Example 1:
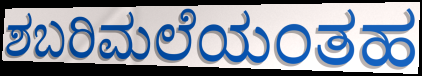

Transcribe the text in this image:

ಶಬರಿಮಲೆಯಂತಹ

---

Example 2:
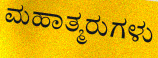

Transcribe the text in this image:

ಮಹಾತ್ಮರುಗಳು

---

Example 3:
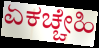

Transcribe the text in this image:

ಏಕಚ್ಚೇಹಿ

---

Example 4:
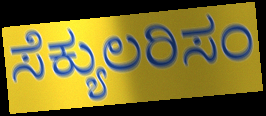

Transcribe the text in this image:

ಸೆಕ್ಯುಲರಿಸಂ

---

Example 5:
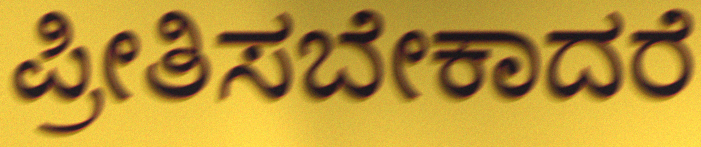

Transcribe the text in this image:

ಪ್ರೀತಿಸಬೇಕಾದರೆ